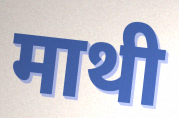
माथी